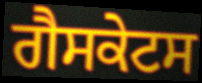
ਗੈਸਕੇਟਸ